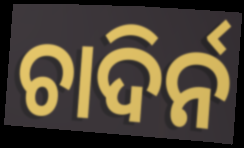
ଚାଦିର୍ନ